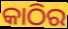
କାଠିର